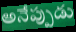
అనేప్పుడు